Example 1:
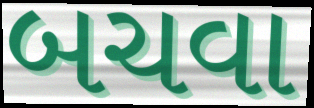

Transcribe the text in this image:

બચવા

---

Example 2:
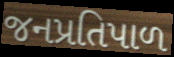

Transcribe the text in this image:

જનપ્રતિપાળ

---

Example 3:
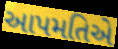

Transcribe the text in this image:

આપમતિએ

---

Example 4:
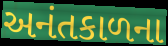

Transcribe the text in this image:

અનંતકાળના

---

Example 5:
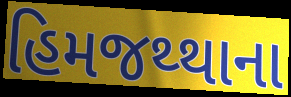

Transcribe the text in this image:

હિમજથ્થાના